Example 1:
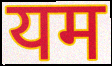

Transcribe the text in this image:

यम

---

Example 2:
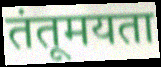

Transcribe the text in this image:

तंतूमयता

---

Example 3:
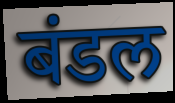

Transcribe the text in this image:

बंडल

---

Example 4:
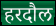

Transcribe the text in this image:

हरदौल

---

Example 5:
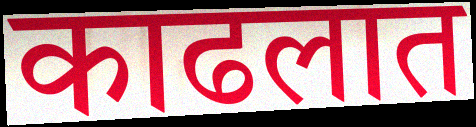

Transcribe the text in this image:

काढलात